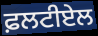
ਫ਼ਲਟੀਏਲ